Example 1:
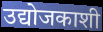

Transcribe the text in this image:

उद्योजकाशी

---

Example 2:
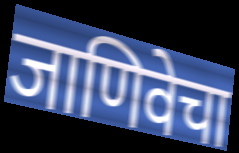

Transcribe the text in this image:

जाणिवेचा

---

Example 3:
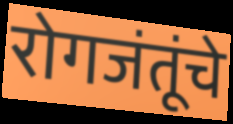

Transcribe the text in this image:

रोगजंतूंचे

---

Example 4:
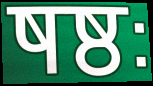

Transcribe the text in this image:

षष्ठः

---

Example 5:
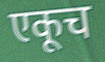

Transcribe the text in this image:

एकूच